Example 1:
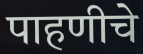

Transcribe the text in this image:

पाहणीचे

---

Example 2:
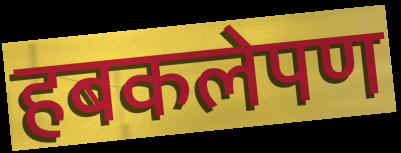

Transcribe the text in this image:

हबकलेपण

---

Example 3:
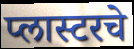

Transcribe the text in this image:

प्लास्टरचे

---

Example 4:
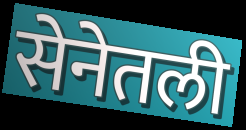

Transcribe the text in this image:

सेनेतली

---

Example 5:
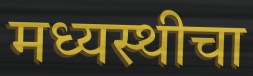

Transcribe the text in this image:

मध्यस्थीचा